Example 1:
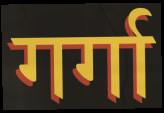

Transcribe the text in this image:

गर्गा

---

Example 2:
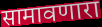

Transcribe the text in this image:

सामावणारा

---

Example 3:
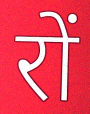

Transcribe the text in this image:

रों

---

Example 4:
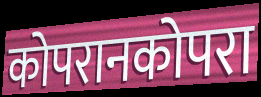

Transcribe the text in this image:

कोपरानकोपरा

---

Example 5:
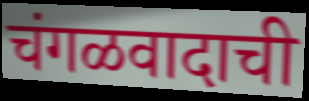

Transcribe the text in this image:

चंगळवादाची